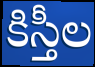
కిస్తీల